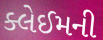
ક્લેઈમની